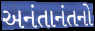
અનંતાનંતનો